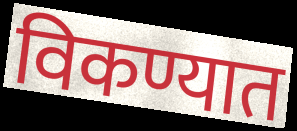
विकण्यात